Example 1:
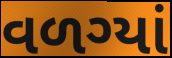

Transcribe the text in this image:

વળગ્યાં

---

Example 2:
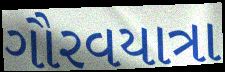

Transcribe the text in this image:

ગૌરવયાત્રા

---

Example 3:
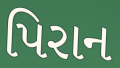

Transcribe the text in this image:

પિરાન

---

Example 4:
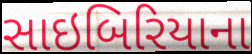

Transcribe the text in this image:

સાઇબિરિયાના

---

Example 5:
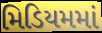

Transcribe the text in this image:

મિડિયમમાં